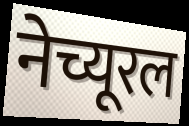
नेच्यूरल